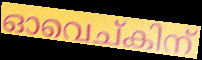
ഓവെച്കിന്